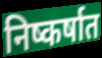
निष्कर्षात